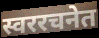
स्वररचनेत